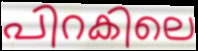
പിറകിലെ